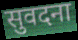
सुवदना